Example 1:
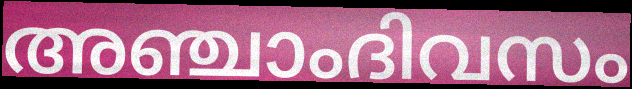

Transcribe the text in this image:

അഞ്ചാംദിവസം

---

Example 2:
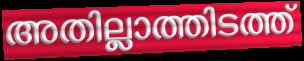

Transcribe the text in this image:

അതില്ലാത്തിടത്ത്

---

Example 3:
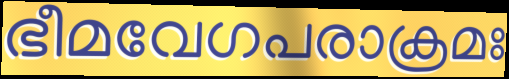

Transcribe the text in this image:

ഭീമവേഗപരാക്രമഃ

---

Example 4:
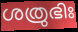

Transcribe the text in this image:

ശത്രുഭിഃ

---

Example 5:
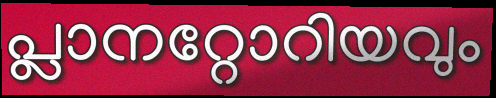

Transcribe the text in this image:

പ്ലാനറ്റോറിയവും